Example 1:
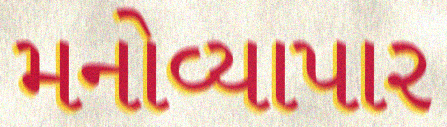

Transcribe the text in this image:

મનોવ્યાપાર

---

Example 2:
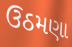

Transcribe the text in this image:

ઉઠમણા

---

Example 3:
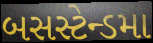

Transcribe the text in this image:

બસસ્ટેન્ડમા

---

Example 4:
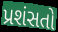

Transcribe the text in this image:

પ્રશંસતો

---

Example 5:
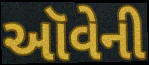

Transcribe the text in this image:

ઑવેની